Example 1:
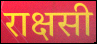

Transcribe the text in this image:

राक्षसी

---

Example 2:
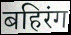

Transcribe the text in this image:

बहिरंग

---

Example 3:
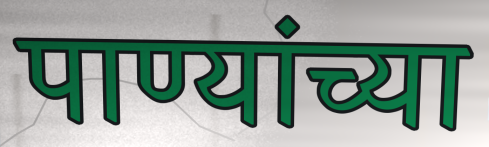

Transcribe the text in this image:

पाण्यांच्या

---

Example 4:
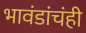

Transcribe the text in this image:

भावंडांचंही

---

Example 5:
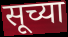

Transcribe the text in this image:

सूच्या